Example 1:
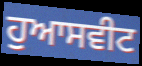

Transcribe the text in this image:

ਹੁਆਸਵੀਟ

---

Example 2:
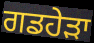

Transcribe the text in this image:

ਗਡਹੇੜਾ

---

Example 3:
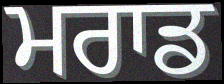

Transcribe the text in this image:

ਮਰਾਡ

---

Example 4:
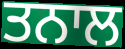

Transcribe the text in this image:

ਤਨਾਲ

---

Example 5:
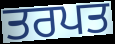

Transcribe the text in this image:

ਤਰਪਤ